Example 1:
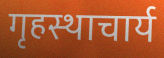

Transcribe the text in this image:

गृहस्थाचार्य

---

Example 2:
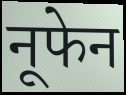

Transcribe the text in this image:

नूफेन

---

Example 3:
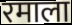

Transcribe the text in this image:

रमाला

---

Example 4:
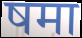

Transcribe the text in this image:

षमा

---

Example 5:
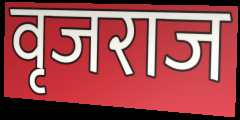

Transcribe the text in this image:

वृजराज